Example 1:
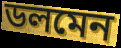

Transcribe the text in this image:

ডলমেন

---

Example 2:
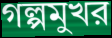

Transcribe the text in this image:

গল্পমুখর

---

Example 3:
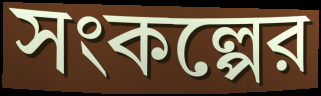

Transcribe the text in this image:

সংকল্পের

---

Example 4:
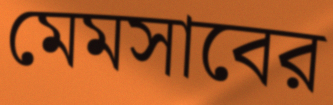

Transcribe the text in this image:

মেমসাবের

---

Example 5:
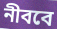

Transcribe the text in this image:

নীববে